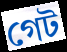
গেট